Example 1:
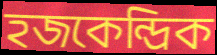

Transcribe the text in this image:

হজকেন্দ্রিক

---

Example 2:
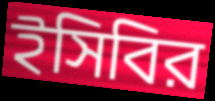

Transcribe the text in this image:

ইসিবির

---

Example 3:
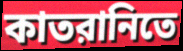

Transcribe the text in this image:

কাতরানিতে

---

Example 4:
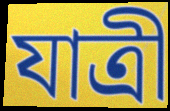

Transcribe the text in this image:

যাত্রী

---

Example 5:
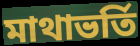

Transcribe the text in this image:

মাথাভর্তি